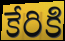
కేరికి